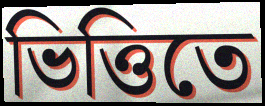
ভিত্তিতে